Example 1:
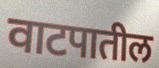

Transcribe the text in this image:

वाटपातील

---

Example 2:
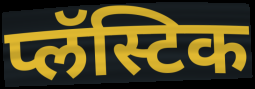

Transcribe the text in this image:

प्लॅस्टिक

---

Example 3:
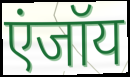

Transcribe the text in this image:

एंजॉय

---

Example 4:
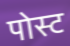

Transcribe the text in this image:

पोस्ट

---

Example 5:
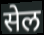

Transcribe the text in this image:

सेल